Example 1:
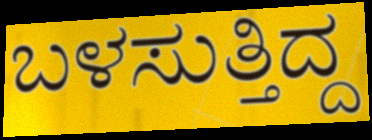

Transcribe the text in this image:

ಬಳಸುತ್ತಿದ್ದ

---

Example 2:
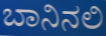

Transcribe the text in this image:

ಬಾನಿನಲಿ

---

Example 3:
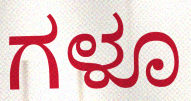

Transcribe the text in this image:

ಗಳೂ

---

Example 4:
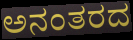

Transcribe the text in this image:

ಅನಂತರದ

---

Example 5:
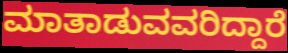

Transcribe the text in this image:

ಮಾತಾಡುವವರಿದ್ದಾರೆ